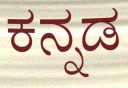
ಕನ್ನಡ